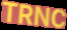
TRNC